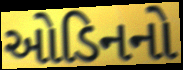
ઓડિનનો